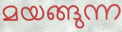
മയങ്ങുന്ന